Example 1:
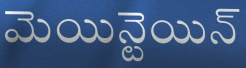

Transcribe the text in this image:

మెయిన్టెయిన్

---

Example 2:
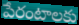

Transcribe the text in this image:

పేరంటాలకు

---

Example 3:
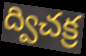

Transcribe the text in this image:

ద్విచక్ర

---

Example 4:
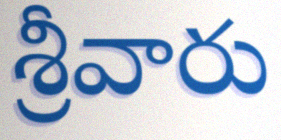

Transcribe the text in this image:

శ్రీవారు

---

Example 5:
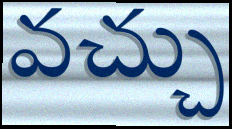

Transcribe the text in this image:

వచ్చు